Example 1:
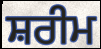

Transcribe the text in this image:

ਸ਼ਰੀਮ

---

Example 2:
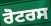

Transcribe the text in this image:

ਰੋਟਰਸ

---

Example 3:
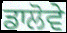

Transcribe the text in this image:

ਡਾਲੋਵੇ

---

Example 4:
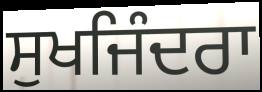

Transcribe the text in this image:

ਸੁਖਜਿੰਦਰਾ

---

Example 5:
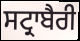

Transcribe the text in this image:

ਸਟ੍ਰਾਬੈਰੀ